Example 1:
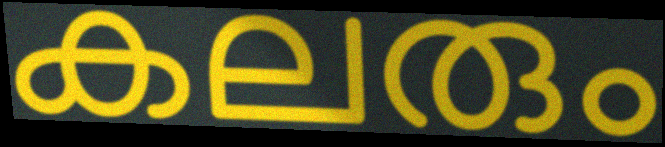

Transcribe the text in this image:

കലരും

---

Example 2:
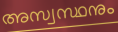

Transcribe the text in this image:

അസ്വസ്ഥനും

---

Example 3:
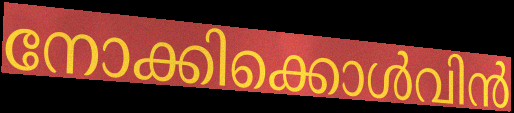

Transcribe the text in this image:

നോക്കിക്കൊൾവിൻ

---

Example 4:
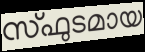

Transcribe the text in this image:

സ്ഫുടമായ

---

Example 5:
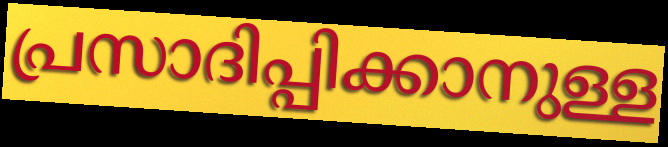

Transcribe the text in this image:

പ്രസാദിപ്പിക്കാനുള്ള